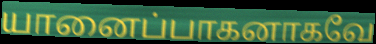
யானைப்பாகனாகவே